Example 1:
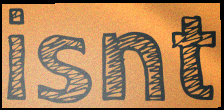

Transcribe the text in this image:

isnt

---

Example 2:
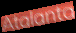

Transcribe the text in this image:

Atalanta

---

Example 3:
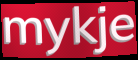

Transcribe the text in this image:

mykje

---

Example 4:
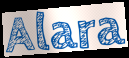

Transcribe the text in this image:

Alara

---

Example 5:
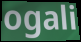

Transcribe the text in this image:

ogali